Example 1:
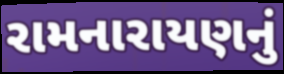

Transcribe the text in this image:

રામનારાયણનું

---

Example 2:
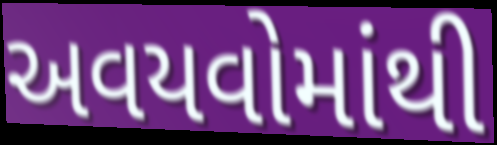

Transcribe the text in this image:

અવયવોમાંથી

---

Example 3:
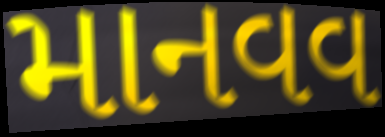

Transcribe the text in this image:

માનવવ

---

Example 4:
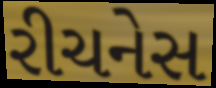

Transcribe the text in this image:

રીચનેસ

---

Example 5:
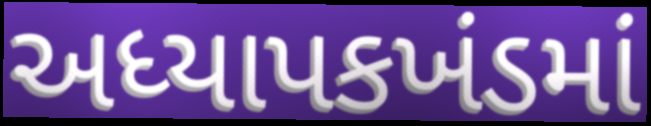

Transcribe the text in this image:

અધ્યાપકખંડમાં